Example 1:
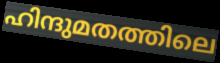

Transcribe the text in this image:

ഹിന്ദുമതത്തിലെ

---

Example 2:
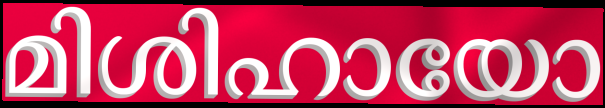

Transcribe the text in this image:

മിശിഹായോ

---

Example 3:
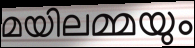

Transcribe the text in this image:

മയിലമ്മയും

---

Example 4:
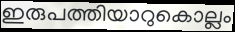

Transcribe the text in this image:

ഇരുപത്തിയാറുകൊല്ലം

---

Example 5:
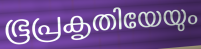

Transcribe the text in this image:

ഭൂപ്രകൃതിയേയും